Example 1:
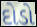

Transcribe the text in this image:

દોડો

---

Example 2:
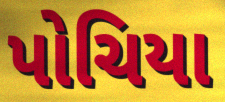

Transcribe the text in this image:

પોચિયા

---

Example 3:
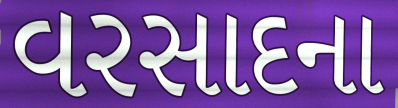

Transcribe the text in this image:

વરસાદના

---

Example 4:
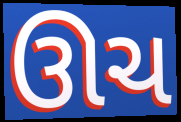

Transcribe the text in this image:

ઊચ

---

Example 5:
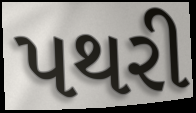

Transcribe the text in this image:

પથરી